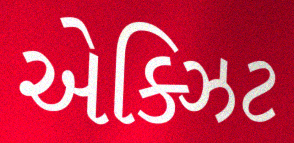
એક્ઝિટ